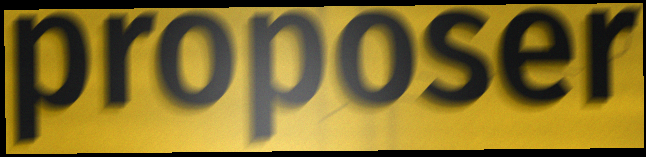
proposer